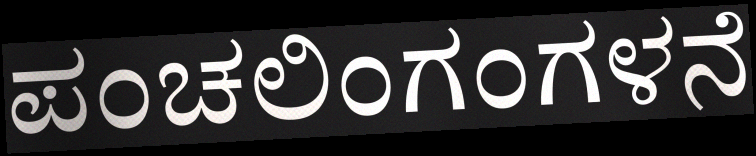
ಪಂಚಲಿಂಗಂಗಳನೆ